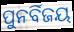
ପୁନର୍ବିଜୟ